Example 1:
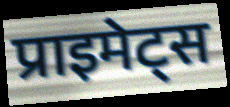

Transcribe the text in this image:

प्राइमेट्स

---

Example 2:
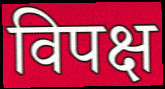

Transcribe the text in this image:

विपक्ष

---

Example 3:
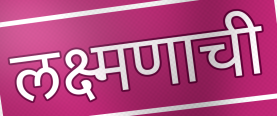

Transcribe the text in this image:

लक्ष्मणाची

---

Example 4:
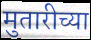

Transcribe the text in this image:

मुतारीच्या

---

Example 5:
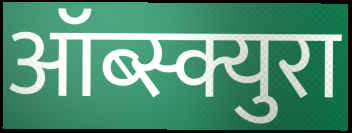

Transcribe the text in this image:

ऑब्स्क्युरा